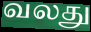
வலது